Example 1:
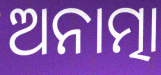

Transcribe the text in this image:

ଅନାତ୍ମା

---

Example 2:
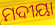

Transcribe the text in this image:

ମଦୀୟା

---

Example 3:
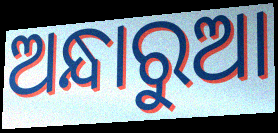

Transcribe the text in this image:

ଅନ୍ଧାରୁଆ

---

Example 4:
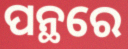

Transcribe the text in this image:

ପନ୍ଥରେ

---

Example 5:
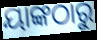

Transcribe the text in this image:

ୟାଙ୍କଠାରୁ